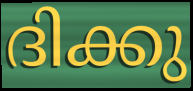
ദിക്കു